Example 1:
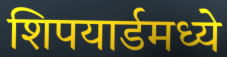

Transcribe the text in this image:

शिपयार्डमध्ये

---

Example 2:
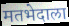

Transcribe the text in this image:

मतभेदाला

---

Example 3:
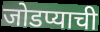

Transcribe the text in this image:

जोडप्याची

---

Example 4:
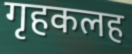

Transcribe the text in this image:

गृहकलह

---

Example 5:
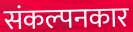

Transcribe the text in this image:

संकल्पनकार